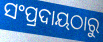
ସଂପ୍ରଦାୟଠାରୁ